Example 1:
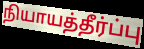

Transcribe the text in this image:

நியாயத்தீர்ப்பு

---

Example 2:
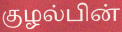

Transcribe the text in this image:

குழல்பின்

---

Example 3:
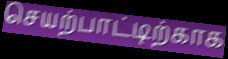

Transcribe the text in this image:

செயற்பாட்டிற்காக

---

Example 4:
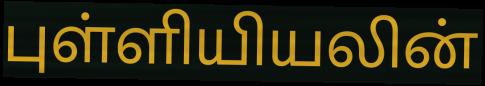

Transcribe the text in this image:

புள்ளியியலின்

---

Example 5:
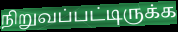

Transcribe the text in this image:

நிறுவப்பட்டிருக்க